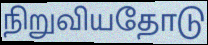
நிறுவியதோடு